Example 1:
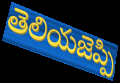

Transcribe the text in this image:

తెలియజెప్పి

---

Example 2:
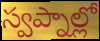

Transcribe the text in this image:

స్వప్నాల్లో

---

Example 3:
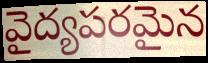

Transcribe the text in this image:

వైద్యపరమైన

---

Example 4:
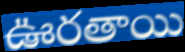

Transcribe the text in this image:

ఊరతాయి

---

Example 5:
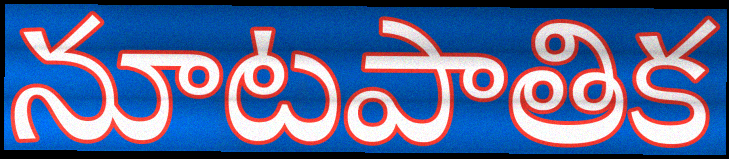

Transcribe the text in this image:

నూటపాతిక